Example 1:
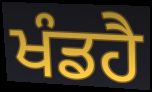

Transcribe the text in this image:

ਖੰਡਹੈ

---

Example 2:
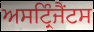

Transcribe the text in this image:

ਅਸਟ੍ਰਿੰਜੈਂਟਸ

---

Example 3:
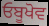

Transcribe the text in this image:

ਓਬੂਖੋਵ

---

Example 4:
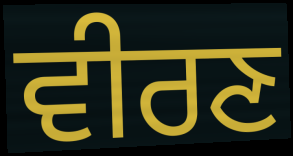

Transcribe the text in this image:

ਵੀਰਣ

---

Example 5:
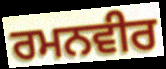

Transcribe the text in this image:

ਰਮਨਵੀਰ